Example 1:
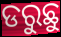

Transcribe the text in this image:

ଡରୁଛୁ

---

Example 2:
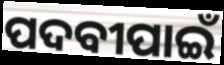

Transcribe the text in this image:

ପଦବୀପାଇଁ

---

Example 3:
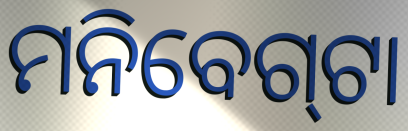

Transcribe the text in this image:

ମନିବେଗ୍‍ଟା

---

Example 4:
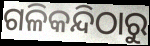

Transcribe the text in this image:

ଗଳିକନ୍ଦିଠାରୁ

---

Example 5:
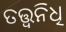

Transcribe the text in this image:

ତତ୍ତ୍ଵନିଧି